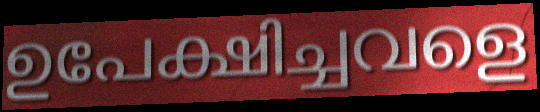
ഉപേക്ഷിച്ചവളെ